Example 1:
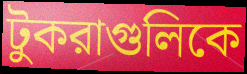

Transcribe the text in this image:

টুকরাগুলিকে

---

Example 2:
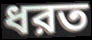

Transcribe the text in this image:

ধরত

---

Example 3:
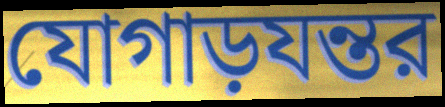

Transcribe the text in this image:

যোগাড়যন্তর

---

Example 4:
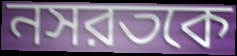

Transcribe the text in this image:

নসরতকে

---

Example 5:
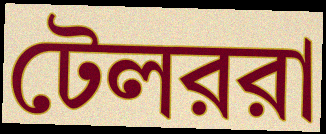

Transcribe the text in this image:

টেলররা